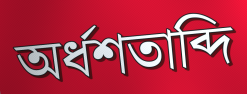
অর্ধশতাব্দি